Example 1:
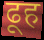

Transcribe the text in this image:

ढूह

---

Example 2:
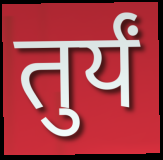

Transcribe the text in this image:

तुर्यं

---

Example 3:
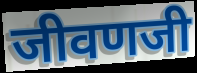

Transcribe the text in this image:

जीवणजी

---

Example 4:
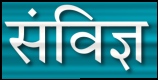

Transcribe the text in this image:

संविज्ञ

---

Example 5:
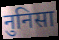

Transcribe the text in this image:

नुनिसा